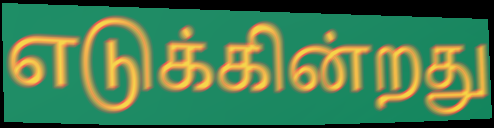
எடுக்கின்றது